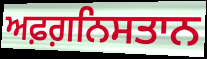
ਅਫ਼ਗ਼ਨਿਸਤਾਨ